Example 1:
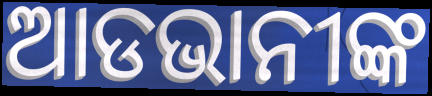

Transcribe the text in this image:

ଆଡଭାନୀଙ୍କ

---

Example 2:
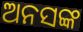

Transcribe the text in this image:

ଅନସଙ୍କ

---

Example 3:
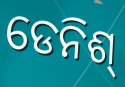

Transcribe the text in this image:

ଡେନିଶ୍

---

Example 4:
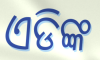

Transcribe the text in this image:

ଏଡିଙ୍କ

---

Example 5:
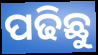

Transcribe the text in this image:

ପଢିଛୁ